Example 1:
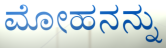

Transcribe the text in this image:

ಮೋಹನನ್ನು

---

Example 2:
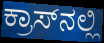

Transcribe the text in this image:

ಕ್ರಾಸ್‌ನಲ್ಲಿ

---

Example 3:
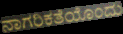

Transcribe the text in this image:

ನಾಗರಿಕತೆಯೊಂದು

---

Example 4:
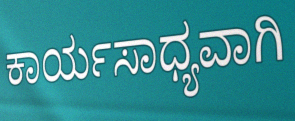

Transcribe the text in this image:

ಕಾರ್ಯಸಾಧ್ಯವಾಗಿ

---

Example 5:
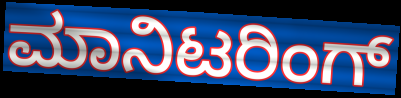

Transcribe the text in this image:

ಮಾನಿಟರಿಂಗ್